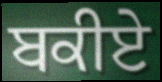
ਬਕੀਏ